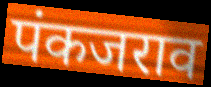
पंकजराव